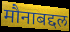
मौनाबद्दल